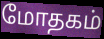
மோதகம்